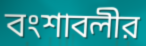
বংশাবলীর